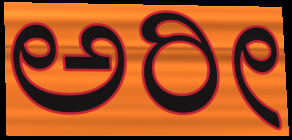
ಅರೀ